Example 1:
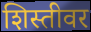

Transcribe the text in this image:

शिस्तीवर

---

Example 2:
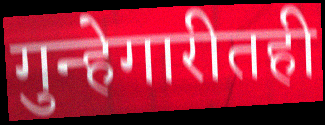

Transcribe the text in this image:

गुन्हेगारीतही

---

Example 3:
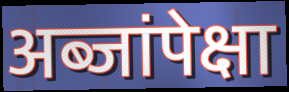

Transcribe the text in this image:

अब्जांपेक्षा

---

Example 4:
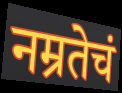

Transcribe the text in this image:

नम्रतेचं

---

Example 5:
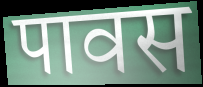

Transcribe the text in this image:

पावस